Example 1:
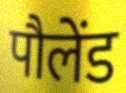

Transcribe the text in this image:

पौलेंड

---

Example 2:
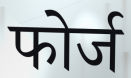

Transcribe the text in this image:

फोर्ज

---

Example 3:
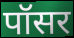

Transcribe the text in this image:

पॉसर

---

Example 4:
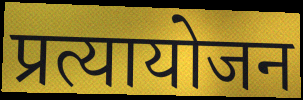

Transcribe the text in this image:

प्रत्यायोजन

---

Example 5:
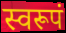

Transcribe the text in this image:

स्वरूपं